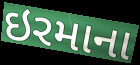
ઇરમાના